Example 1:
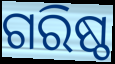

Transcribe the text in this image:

ଗରିଷ୍ଠ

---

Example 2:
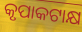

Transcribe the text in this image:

କୃପାକଟାକ୍ଷ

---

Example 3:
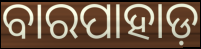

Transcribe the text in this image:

ବାରପାହାଡ଼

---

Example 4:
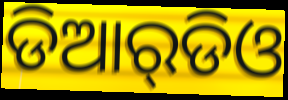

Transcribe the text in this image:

ଡିଆର୍‌ଡିଓ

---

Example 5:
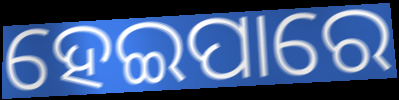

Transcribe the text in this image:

ହେଇପାରେ